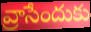
వ్రాసేందుకు